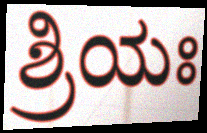
ಶ್ರಿಯಃ